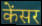
केंसर